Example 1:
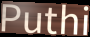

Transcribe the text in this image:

Puthi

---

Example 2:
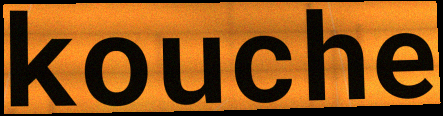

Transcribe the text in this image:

kouche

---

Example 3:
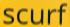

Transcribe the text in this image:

scurf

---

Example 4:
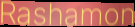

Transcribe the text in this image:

Rashamon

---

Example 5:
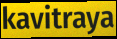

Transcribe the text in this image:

kavitraya